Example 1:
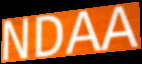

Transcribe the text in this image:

NDAA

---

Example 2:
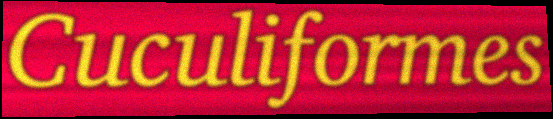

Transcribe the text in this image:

Cuculiformes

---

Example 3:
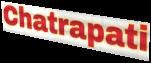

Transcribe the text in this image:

Chatrapati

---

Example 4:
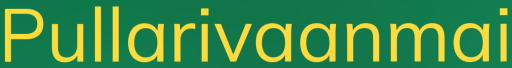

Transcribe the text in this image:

Pullarivaanmai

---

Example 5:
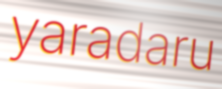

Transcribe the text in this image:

yaradaru